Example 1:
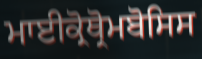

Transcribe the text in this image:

ਮਾਈਕ੍ਰੋਥ੍ਰੋਮਬੋਸਿਸ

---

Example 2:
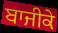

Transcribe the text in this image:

ਬਾਜੀਕੇ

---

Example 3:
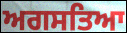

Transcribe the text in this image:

ਅਗਸਤਿਆ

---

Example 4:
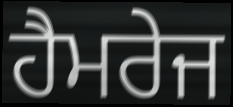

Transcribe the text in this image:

ਹੈਮਰੇਜ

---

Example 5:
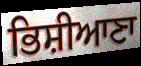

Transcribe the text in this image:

ਭਿਸ਼ੀਆਣਾ